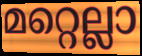
മറ്റെല്ലാ